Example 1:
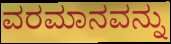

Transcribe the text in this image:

ವರಮಾನವನ್ನು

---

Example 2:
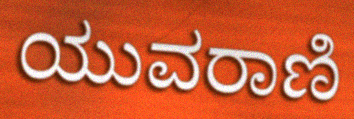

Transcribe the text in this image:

ಯುವರಾಣಿ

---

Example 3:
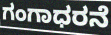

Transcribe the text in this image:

ಗಂಗಾಧರನೆ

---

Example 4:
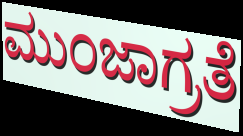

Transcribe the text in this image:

ಮುಂಜಾಗ್ರತೆ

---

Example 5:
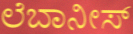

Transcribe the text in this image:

ಲೆಬಾನೀಸ್